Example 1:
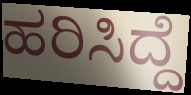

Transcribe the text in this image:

ಹರಿಸಿದ್ದೆ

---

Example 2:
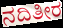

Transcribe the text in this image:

ನದಿತೀರ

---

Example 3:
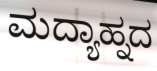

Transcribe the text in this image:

ಮದ್ಯಾಹ್ನದ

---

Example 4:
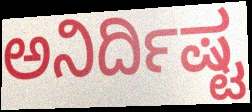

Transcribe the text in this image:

ಅನಿರ್ದಿಷ್ಟ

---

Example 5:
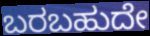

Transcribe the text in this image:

ಬರಬಹುದೇ